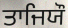
ਤਾਜਿਯੌ